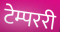
टेम्पररी